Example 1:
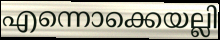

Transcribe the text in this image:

എന്നൊക്കെയല്ലി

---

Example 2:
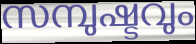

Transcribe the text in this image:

സമ്പുഷ്ടവും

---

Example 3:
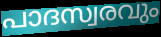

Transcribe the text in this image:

പാദസ്വരവും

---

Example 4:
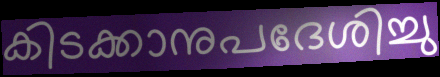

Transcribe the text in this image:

കിടക്കാനുപദേശിച്ചു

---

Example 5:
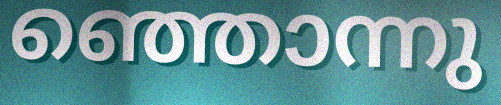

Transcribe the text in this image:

ഞ്ഞൊന്നു